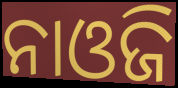
ନାଓଜି